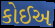
કોઈઅ